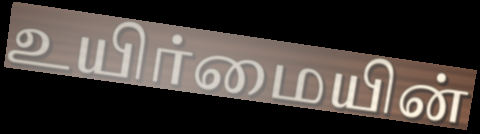
உயிர்மையின்